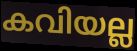
കവിയല്ല